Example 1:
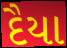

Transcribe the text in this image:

દૈયા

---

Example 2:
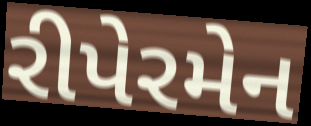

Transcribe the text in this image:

રીપેરમેન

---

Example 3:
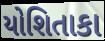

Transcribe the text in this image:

યોશિતાકા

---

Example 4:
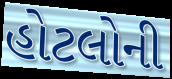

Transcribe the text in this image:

હોટલોની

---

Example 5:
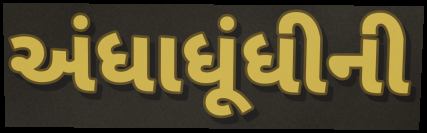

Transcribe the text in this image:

અંધાધૂંધીની